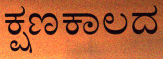
ಕ್ಷಣಕಾಲದ